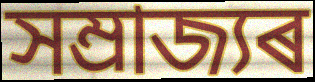
সম্ৰাজ্যৰ